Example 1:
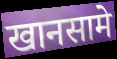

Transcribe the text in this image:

खानसामे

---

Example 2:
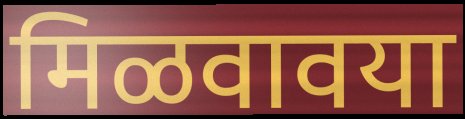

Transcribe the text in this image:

मिळवावया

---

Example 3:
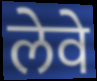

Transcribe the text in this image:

लेवे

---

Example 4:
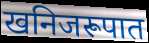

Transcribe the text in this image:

खनिजरूपात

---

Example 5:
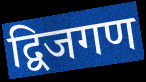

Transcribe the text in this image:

द्विजगण